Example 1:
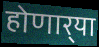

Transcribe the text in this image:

होणार्‍या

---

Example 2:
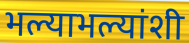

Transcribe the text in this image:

भल्याभल्यांशी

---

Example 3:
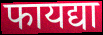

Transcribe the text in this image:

फायद्या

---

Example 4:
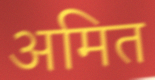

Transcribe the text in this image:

अमित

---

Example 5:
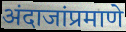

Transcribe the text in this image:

अंदाजांप्रमाणे